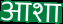
आशा